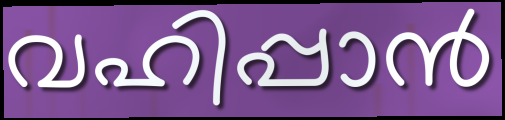
വഹിപ്പാൻ